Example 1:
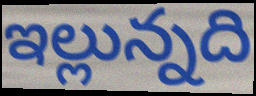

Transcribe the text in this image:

ఇల్లున్నది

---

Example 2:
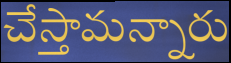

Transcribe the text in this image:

చేస్తామన్నారు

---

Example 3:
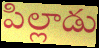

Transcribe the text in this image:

పిల్లాడు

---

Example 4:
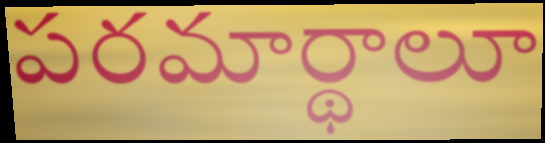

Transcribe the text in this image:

పరమార్థాలూ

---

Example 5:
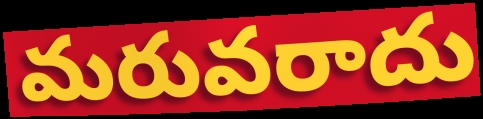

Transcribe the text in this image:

మరువరాదు